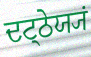
ਦਟ੍ਠੇਯ੍ਯਂ